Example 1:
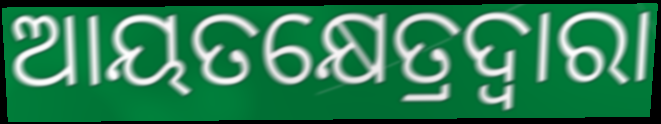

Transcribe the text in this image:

ଆୟତକ୍ଷେତ୍ରଦ୍ଵାରା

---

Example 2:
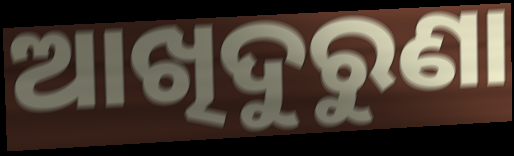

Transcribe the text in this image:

ଆଖିଦୁରୁଣା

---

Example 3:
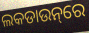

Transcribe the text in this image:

ଲକଡାଉନ୍‌ରେ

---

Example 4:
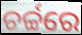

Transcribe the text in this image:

ଚର୍ଚ୍ଚରେ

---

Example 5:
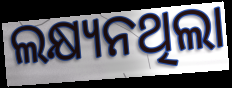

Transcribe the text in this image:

ଲକ୍ଷ୍ୟନଥିଲା